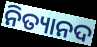
ନିତ୍ୟାନଦ